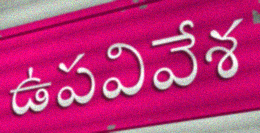
ఉపవివేశ